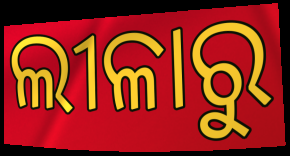
ଲୀଳାରୁ